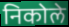
निकोले